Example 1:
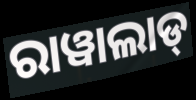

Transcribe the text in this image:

ରାୱାଲାଡ୍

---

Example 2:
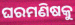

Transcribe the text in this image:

ଘରମଣିଷକୁ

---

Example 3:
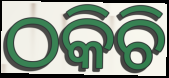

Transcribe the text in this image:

ଠକିଚି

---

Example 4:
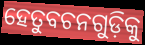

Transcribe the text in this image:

ହେତୁବଚନଗୁଡ଼ିକୁ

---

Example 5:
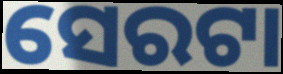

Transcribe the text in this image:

ସେରଟା